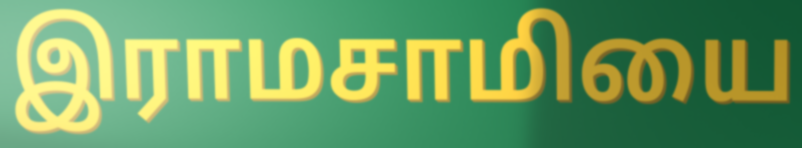
இராமசாமியை